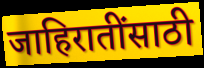
जाहिरातींसाठी